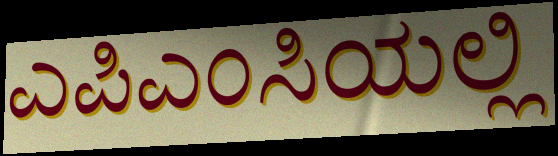
ಎಪಿಎಂಸಿಯಲ್ಲಿ